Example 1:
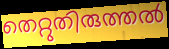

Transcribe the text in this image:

തെറ്റുതിരുത്തൽ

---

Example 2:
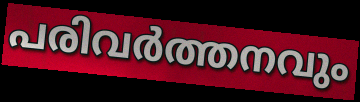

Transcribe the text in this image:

പരിവർത്തനവും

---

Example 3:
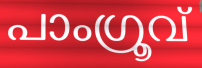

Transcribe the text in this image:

പാംഗ്രൂവ്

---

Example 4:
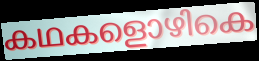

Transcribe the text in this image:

കഥകളൊഴികെ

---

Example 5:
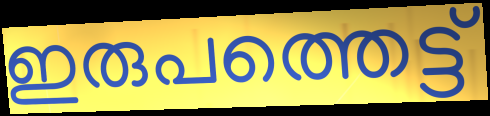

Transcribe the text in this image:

ഇരുപത്തെട്ട്